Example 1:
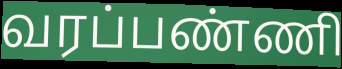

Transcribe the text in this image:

வரப்பண்ணி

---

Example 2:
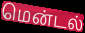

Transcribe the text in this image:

மென்டல்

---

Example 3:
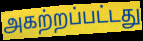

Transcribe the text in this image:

அகற்றப்பட்டது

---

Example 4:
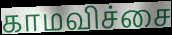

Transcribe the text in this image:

காமவிச்சை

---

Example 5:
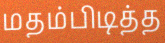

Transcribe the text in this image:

மதம்பிடித்த